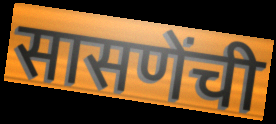
सासणेंची